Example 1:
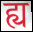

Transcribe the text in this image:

ह्य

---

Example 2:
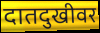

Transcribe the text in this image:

दातदुखीवर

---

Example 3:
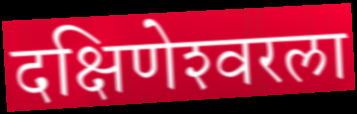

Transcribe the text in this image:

दक्षिणेश्वरला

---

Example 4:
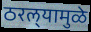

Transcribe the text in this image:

ठरल्यामुळे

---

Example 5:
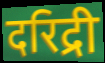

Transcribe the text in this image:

दरिद्री